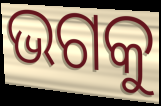
ଭଗକୁ